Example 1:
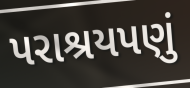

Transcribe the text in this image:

પરાશ્રયપણું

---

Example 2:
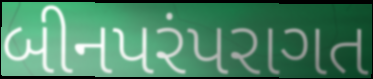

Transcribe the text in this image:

બીનપરંપરાગત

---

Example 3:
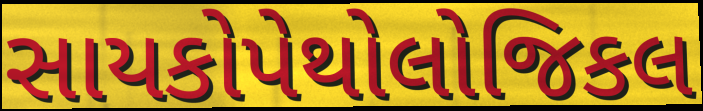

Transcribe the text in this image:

સાયકોપેથોલોજિકલ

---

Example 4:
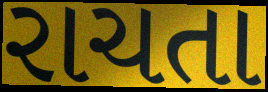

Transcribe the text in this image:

રાચતા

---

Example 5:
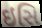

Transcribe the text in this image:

ઇસિ